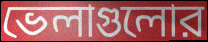
ভেলাগুলোর